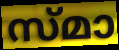
സ്മാ